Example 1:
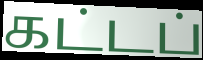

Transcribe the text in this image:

கட்டப்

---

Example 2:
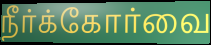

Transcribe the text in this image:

நீர்க்கோர்வை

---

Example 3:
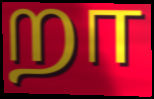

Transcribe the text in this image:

றா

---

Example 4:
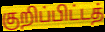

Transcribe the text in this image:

குறிப்பிட்டத்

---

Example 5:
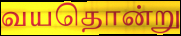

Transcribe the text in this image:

வயதொன்று